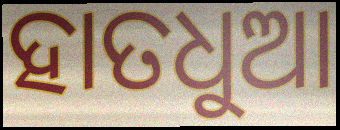
ହାତଧୁଆ